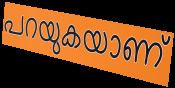
പറയുകയാണ്